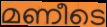
മണീടെ